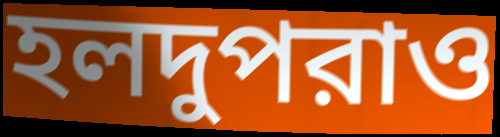
হলদুপরাও